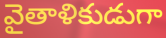
వైతాళికుడుగా